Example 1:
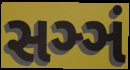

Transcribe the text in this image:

સઞ્ઞં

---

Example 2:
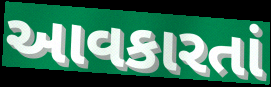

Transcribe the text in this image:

આવકારતાં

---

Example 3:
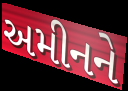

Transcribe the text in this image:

અમીનને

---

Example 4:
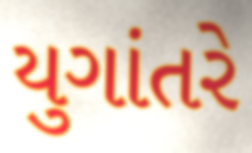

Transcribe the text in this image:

યુગાંતરે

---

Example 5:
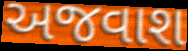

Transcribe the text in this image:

અજવાશ